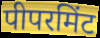
पीपरमिंट